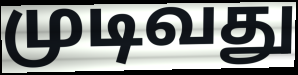
முடிவது